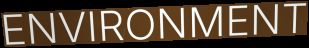
ENVIRONMENT